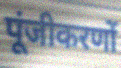
पूंजीकरणों